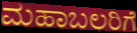
ಮಹಾಬಲರಿಗೆ